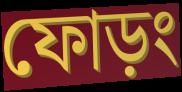
ফোড়ং